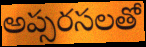
అప్సరసలతో